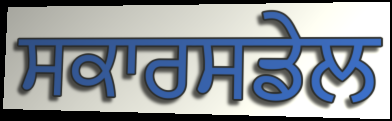
ਸਕਾਰਸਡੇਲ